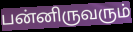
பன்னிருவரும்